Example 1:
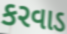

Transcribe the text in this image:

કરવાડ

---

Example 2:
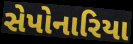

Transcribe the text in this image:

સેપોનારિયા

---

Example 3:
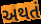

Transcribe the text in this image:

અથતં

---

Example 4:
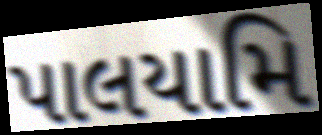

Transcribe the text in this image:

પાલયામિ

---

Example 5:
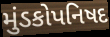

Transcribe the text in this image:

મુંડકોપનિષદ